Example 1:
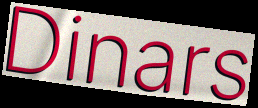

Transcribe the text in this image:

Dinars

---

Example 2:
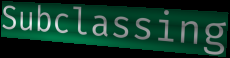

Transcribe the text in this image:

Subclassing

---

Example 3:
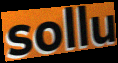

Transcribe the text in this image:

sollu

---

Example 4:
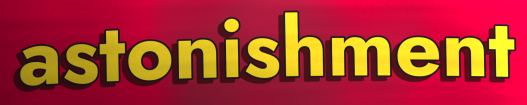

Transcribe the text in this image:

astonishment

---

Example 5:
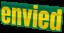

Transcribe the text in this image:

envied